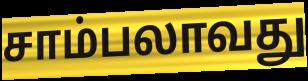
சாம்பலாவது